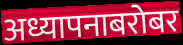
अध्यापनाबरोबर